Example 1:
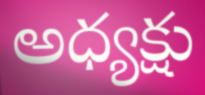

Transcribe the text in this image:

అధ్యక్షు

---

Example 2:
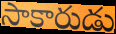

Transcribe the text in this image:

సాకారుడు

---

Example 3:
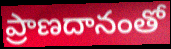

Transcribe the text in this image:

ప్రాణదానంతో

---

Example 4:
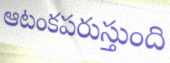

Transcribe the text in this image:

ఆటంకపరుస్తుంది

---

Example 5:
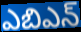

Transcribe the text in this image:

ఎబిఎన్